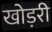
खोड़री